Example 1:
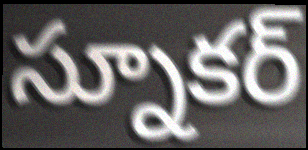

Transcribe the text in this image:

స్నూకర్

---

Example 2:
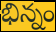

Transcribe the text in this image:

భిన్నం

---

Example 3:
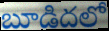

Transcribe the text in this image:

బూడిదలో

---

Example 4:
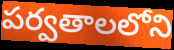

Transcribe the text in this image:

పర్వతాలలోని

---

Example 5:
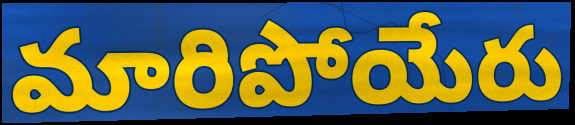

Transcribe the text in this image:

మారిపోయేరు